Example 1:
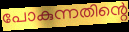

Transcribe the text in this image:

പോകുന്നതിന്റെ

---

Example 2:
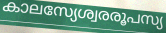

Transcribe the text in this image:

കാലസ്യേശ്വരരൂപസ്യ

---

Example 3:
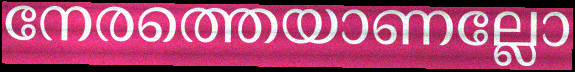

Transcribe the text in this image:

നേരത്തെയാണല്ലോ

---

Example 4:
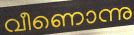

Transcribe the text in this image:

വീണൊന്നു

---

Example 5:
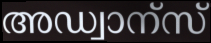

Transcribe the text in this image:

അഡ്വാന്സ്